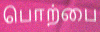
பொற்பை